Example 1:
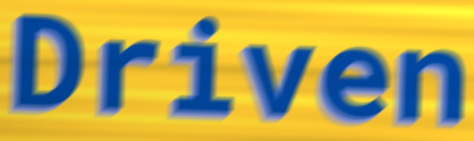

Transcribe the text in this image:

Driven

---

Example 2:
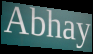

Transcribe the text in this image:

Abhay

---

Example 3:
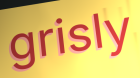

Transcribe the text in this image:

grisly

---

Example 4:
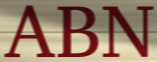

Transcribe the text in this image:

ABN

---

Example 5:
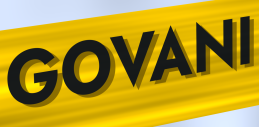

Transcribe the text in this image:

GOVANI